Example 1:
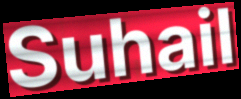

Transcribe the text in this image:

Suhail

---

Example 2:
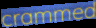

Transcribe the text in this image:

crammed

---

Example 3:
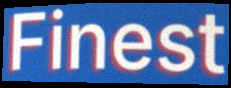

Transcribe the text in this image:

Finest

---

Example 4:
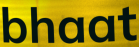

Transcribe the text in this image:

bhaat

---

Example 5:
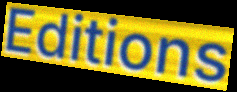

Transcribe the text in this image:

Editions